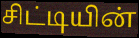
சிட்டியின்